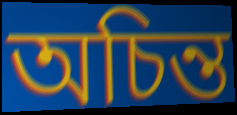
অচিন্ত